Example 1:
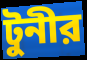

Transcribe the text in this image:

টুনীর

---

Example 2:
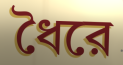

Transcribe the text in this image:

ধৈরে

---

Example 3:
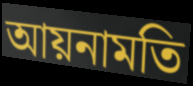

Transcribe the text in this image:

আয়নামতি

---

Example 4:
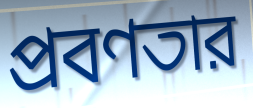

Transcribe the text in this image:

প্রবণতার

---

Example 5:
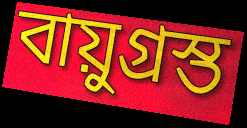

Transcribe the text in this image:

বায়ুগ্রস্ত